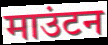
माउंटन